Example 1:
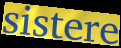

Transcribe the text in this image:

sistere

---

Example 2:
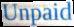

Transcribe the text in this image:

Unpaid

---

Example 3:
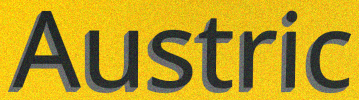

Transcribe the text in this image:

Austric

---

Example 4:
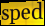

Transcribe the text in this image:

sped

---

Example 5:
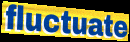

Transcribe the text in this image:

fluctuate